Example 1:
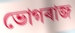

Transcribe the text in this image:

ভোগৰাজ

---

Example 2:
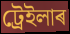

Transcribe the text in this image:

ট্ৰেইলাৰ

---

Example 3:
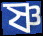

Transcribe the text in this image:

ষ্ণ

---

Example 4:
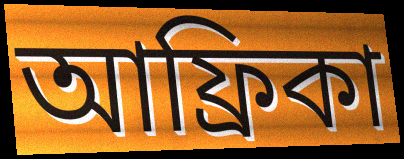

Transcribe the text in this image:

আফ্ৰিকা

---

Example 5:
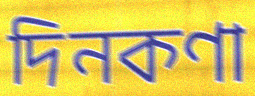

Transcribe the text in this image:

দিনকণা